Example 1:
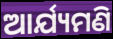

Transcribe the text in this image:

ଆର୍ଯ୍ୟମଣି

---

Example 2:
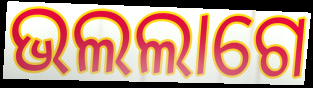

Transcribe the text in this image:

ଭଲଲାଗେ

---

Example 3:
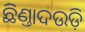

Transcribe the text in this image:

ଛିଣ୍ତାଦଉଡ଼ି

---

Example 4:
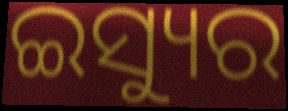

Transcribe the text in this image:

ଇସ୍ୟୁର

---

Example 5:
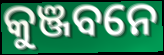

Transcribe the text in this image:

କୁଞ୍ଜବନେ